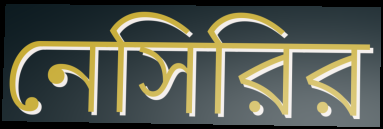
নেসিরির